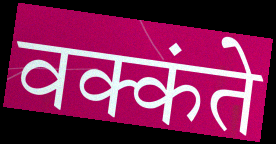
वक्कंते